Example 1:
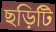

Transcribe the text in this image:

ছড়িটি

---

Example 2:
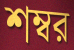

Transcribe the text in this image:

শম্বর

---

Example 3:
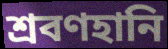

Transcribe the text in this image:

শ্রবণহানি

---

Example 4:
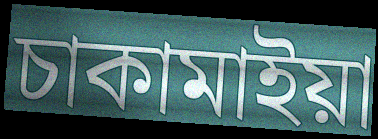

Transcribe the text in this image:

চাকামাইয়া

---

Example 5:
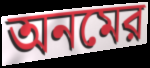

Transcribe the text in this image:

অনমের